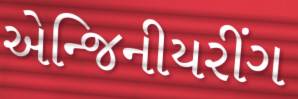
એન્જિનીયરીંગ